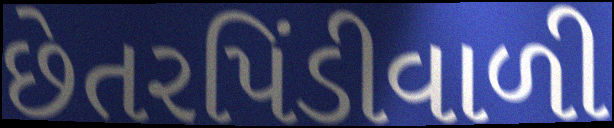
છેતરપિંડીવાળી